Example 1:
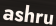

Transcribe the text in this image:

ashru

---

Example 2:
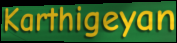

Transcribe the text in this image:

Karthigeyan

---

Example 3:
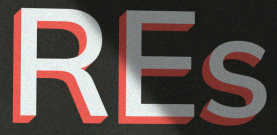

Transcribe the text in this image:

REs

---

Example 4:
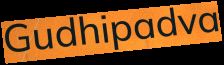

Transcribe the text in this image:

Gudhipadva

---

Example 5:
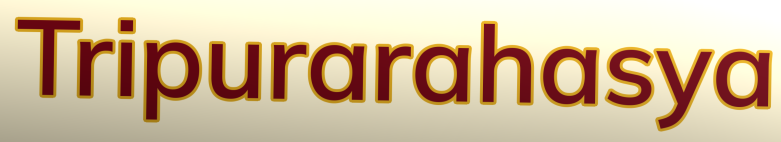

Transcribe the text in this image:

Tripurarahasya